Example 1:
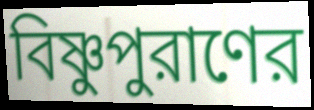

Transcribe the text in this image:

বিষ্ণুপুরাণের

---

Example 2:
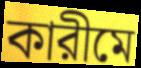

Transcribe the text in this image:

কারীমে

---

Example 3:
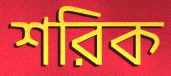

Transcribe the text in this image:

শরিক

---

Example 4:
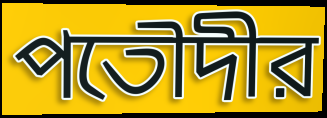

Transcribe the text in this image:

পতৌদীর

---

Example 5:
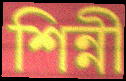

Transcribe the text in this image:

শিন্নী